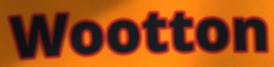
Wootton